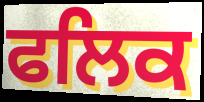
ਫਲਿਕ